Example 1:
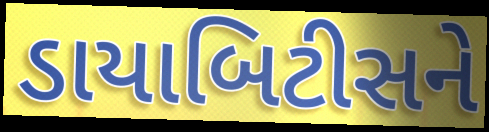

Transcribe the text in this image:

ડાયાબિટીસને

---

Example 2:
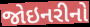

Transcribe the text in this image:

જોઇનરીનો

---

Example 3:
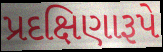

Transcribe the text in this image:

પ્રદક્ષિણારૂપે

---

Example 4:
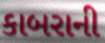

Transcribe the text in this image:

કાબરાની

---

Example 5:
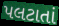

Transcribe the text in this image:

પલટાતાં